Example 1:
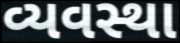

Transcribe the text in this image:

વ્યવસ્થા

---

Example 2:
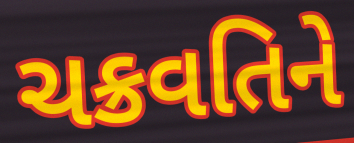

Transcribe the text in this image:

ચક્રવતિને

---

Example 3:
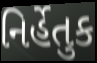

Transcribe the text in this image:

નિર્હેતુક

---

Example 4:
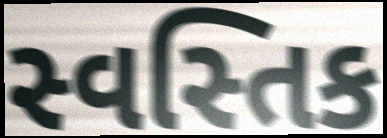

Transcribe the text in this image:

સ્વસ્તિક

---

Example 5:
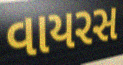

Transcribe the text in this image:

વાયરસ